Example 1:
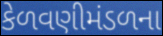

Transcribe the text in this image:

કેળવણીમંડળના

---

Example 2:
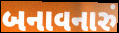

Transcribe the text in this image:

બનાવનારું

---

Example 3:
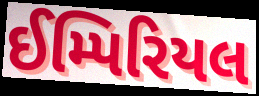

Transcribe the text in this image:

ઈમ્પિરિયલ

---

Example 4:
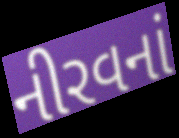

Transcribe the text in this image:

નીરવનાં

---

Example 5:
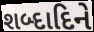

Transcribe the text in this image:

શબ્દાદિને